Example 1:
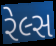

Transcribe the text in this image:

રેલ્સ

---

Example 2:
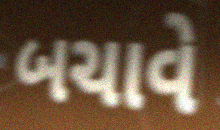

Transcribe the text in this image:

બચાવે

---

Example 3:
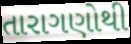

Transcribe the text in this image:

તારાગણોથી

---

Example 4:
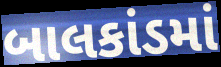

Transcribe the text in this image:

બાલકાંડમાં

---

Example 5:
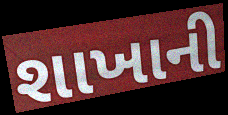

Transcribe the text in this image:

શાખાની